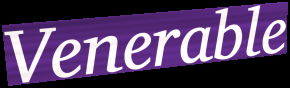
Venerable